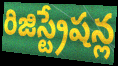
రిజిస్ట్రేషన్ల